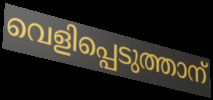
വെളിപ്പെടുത്താന്